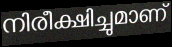
നിരീക്ഷിച്ചുമാണ്